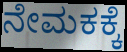
ನೇಮಕಕ್ಕೆ